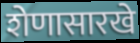
शेणासारखे